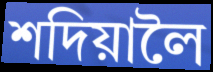
শদিয়ালৈ